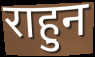
राहुन